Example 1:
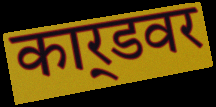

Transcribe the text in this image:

कार्डवर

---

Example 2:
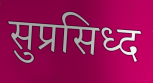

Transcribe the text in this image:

सुप्रसिध्द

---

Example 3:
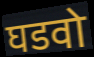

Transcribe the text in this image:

घडवो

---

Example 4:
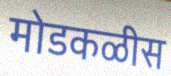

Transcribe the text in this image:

मोडकळीस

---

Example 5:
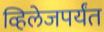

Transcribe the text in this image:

व्हिलेजपर्यंत